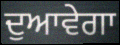
ਦੁਆਵੇਗਾ